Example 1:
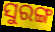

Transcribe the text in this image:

ସୁରଙ୍ଗ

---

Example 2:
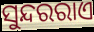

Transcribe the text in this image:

ସୁନ୍ଦରରାଏ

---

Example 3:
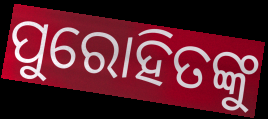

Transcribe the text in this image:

ପୁରୋହିତଙ୍କୁ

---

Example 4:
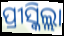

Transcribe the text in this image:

ପ୍ରୀସ୍କିଲ୍ଲା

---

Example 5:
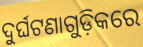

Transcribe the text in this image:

ଦୁର୍ଘଟଣାଗୁଡ଼ିକରେ